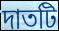
দাতটি